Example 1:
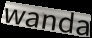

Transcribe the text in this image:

wanda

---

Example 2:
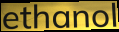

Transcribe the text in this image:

ethanol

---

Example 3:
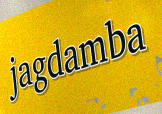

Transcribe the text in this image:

jagdamba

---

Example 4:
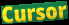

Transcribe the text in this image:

Cursor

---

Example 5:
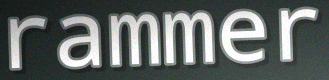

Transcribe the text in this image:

rammer